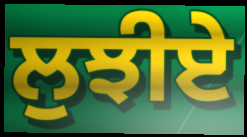
ਲੁਝੀਏ